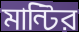
মান্টির